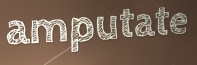
amputate